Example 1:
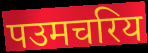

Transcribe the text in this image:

पउमचरिय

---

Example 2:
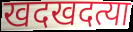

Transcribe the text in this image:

खदखदत्या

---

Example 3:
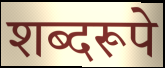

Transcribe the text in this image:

शब्दरूपे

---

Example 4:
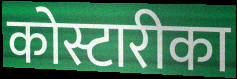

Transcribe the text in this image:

कोस्टारीका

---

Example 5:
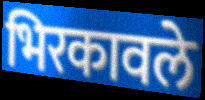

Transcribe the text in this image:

भिरकावले